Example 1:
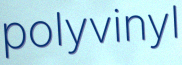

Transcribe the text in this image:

polyvinyl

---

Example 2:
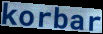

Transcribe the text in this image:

korbar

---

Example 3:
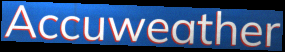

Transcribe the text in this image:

Accuweather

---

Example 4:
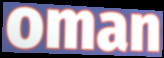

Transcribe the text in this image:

oman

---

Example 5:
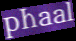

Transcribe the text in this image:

phaal